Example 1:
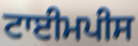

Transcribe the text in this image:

ਟਾਈਮਪੀਸ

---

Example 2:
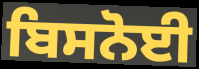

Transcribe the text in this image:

ਬਿਸਨੋਈ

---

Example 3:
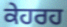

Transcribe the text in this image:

ਕੇਹਰਹ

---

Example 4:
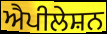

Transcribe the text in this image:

ਐਪੀਲੇਸ਼ਨ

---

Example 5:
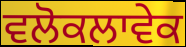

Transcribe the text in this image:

ਵਲੋਕਲਾਵੇਕ